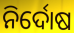
ନିର୍ଦୋଷ